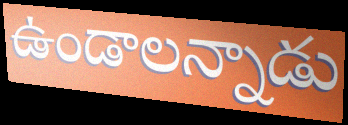
ఉండాలన్నాడు